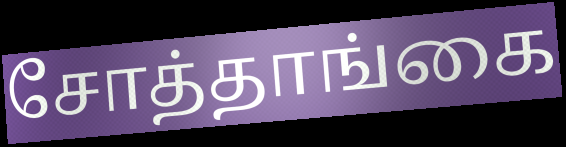
சோத்தாங்கை